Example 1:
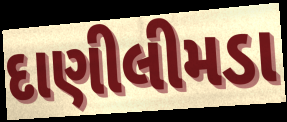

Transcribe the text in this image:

દાણીલીમડા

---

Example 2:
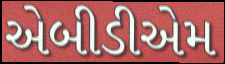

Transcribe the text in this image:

એબીડીએમ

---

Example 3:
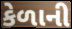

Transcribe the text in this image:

કેળાની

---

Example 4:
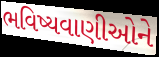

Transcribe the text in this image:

ભવિષ્યવાણીઓને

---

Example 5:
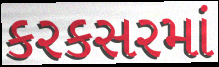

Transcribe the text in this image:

કરકસરમાં